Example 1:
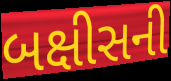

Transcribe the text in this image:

બક્ષીસની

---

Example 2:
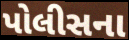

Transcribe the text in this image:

પોલીસના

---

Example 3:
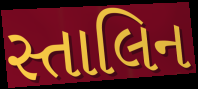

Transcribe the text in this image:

સ્તાલિન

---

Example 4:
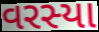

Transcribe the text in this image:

વરસ્યા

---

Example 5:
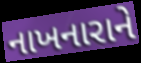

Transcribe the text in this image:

નાખનારાને